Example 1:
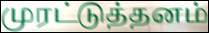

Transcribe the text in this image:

முரட்டுத்தனம்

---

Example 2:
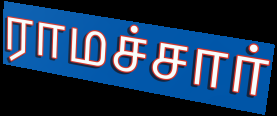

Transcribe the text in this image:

ராமச்சார்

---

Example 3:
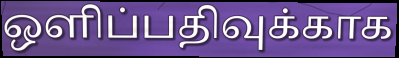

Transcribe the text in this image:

ஒளிப்பதிவுக்காக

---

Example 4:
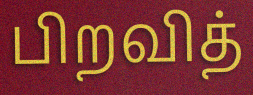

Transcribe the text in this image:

பிறவித்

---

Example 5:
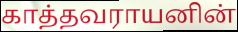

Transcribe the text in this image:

காத்தவராயனின்